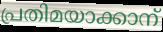
പ്രതിമയാക്കാന്